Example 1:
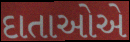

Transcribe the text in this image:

દાતાઓએ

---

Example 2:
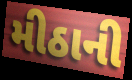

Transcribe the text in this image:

મીઠાની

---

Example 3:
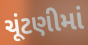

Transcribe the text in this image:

ચૂંટણીમાં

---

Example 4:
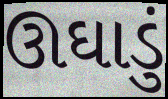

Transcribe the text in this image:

ઊઘાડું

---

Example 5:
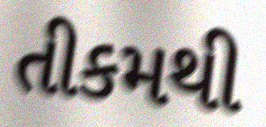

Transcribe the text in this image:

તીકમથી